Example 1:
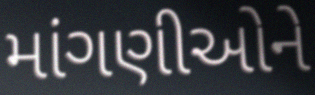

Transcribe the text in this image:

માંગણીઓને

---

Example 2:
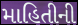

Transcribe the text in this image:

માહિતીની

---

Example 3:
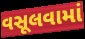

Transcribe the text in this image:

વસૂલવામાં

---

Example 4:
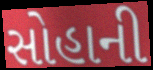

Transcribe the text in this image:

સોહાની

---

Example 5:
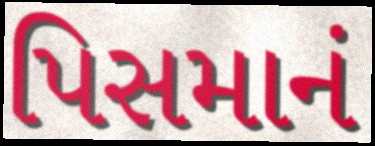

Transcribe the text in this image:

પિસમાનં